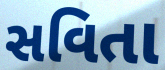
સવિતા